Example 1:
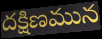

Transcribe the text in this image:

దక్షిణమున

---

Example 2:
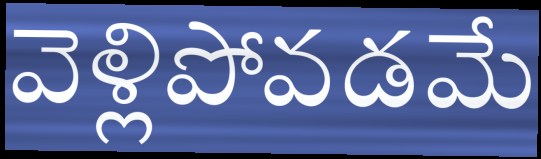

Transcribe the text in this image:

వెళ్లిపోవడమే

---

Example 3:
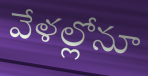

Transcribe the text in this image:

వేళల్లోనూ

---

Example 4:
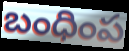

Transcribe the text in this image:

బంధింప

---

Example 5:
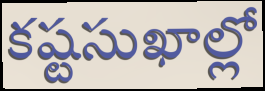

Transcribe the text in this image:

కష్టసుఖాల్లో